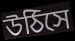
উঠিসে